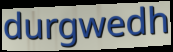
durgwedh